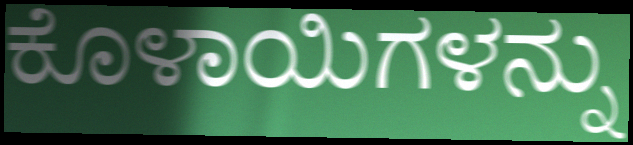
ಕೊಳಾಯಿಗಳನ್ನು